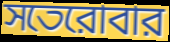
সতেরোবার